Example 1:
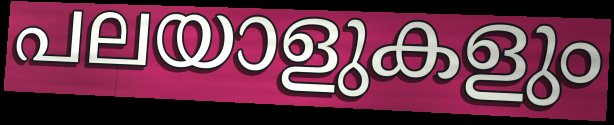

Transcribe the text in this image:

പലയാളുകളും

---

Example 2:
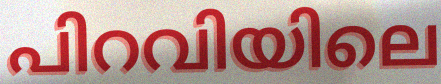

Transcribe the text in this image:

പിറവിയിലെ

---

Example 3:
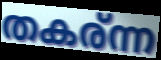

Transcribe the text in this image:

തകര്ന്ന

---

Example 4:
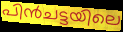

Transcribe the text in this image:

പിൻചട്ടയിലെ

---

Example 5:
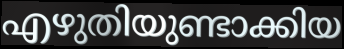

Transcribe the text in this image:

എഴുതിയുണ്ടാക്കിയ